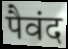
पैवंद